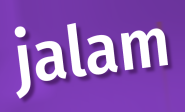
jalam